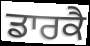
ਡਾਰਕੈ